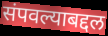
संपवल्याबद्दल